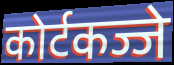
कोर्टकज्जे